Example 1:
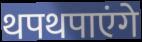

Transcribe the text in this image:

थपथपाएंगे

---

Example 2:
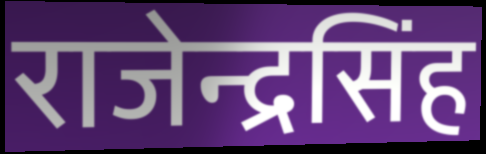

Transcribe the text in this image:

राजेन्द्रसिंह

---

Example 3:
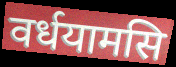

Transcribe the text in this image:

वर्धयामसि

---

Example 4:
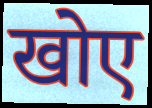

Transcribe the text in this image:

खोए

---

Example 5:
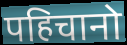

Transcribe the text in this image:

पहिचानो